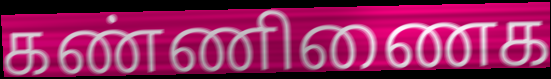
கண்ணிணைக